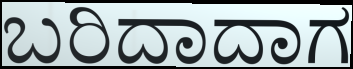
ಬರಿದಾದಾಗ